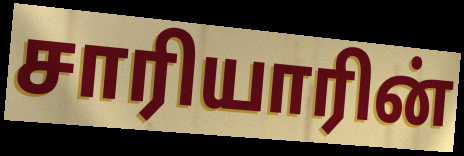
சாரியாரின்